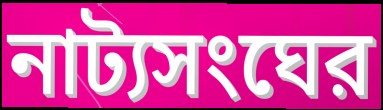
নাট্যসংঘের